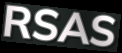
RSAS